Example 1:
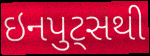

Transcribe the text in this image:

ઇનપુટ્સથી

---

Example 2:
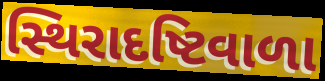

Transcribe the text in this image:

સ્થિરાદષ્ટિવાળા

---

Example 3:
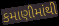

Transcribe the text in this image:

કમાણીમાંથી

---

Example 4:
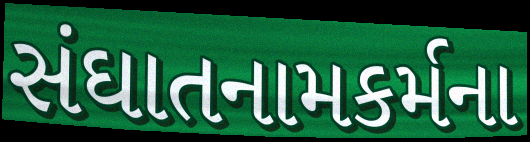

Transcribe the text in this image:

સંઘાતનામકર્મના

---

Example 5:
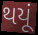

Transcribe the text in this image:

થયૂં